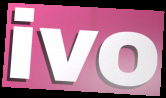
ivo